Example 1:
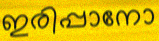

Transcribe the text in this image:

ഇരിപ്പാനോ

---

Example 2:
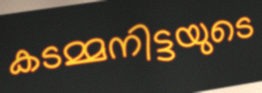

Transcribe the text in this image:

കടമ്മനിട്ടയുടെ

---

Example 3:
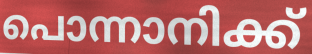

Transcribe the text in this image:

പൊന്നാനിക്ക്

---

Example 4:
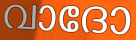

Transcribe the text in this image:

വാദോ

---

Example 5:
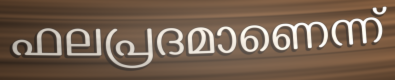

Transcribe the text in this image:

ഫലപ്രദമാണെന്ന്